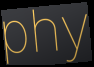
phy